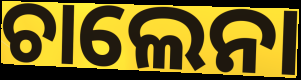
ଚାଲେନା